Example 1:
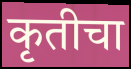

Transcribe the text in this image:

कृतीचा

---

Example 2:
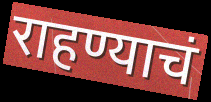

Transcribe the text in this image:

राहण्याचं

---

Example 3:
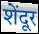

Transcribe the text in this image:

शेंदूर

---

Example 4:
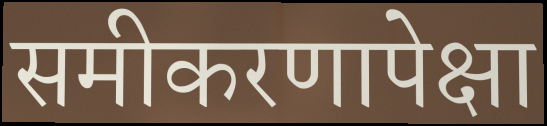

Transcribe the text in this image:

समीकरणापेक्षा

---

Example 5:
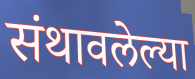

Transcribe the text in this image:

संथावलेल्या